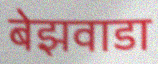
बेझवाडा